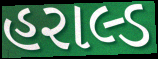
હરાલ્ડ